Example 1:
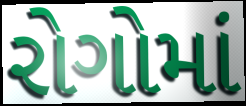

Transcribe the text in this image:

રોગોમાં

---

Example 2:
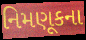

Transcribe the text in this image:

નિમણૂકના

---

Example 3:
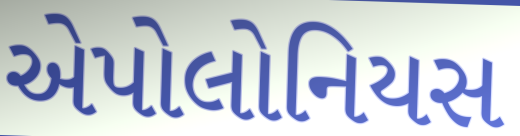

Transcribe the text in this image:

એપોલોનિયસ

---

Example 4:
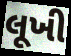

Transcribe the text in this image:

લૂખી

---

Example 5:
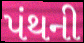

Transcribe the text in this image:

પંથની